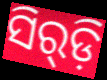
ସିର୍‌ଡ଼ି